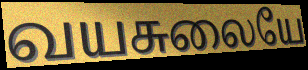
வயசுலையே